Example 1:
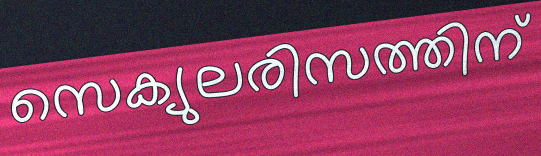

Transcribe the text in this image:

സെക്യുലരിസത്തിന്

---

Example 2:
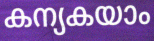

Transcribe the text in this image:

കന്യകയാം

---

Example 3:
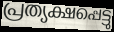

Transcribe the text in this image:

പ്രത്യക്ഷപ്പെട്ടു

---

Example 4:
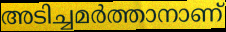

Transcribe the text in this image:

അടിച്ചമർത്താനാണ്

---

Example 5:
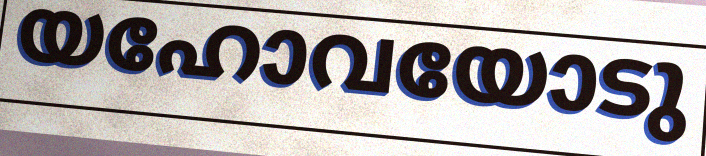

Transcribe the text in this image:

യഹോവയോടു